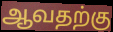
ஆவதற்கு